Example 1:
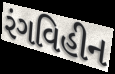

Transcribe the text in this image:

રંગવિહીન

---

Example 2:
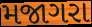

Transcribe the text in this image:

મજાગરા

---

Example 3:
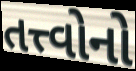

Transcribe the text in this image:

તત્ત્વોનો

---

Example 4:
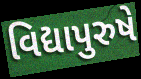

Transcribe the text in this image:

વિદ્યાપુરુષે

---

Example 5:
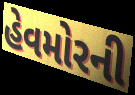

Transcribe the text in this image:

હેવમોરની